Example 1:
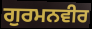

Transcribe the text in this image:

ਗੁਰਮਨਵੀਰ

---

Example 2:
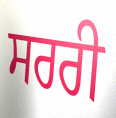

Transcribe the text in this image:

ਸਰਰੀ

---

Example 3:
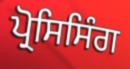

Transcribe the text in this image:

ਪ੍ਰੋਸਿਸਿੰਗ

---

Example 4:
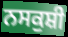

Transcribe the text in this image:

ਨਸਕੁਸ਼ੀ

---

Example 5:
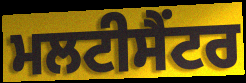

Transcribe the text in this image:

ਮਲਟੀਸੈਂਟਰ